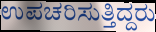
ಉಪಚರಿಸುತ್ತಿದ್ದರು